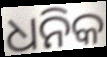
ଧନିକ